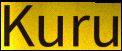
Kuru